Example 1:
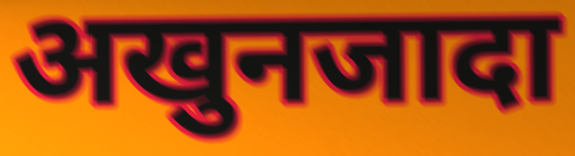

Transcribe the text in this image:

अखुनजादा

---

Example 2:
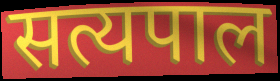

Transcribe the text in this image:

सत्यपाल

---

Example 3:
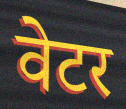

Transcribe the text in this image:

वेटर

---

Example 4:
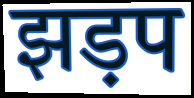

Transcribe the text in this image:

झड़प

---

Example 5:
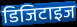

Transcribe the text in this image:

डिजिटाइज